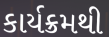
કાર્યક્રમથી